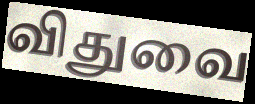
விதுவை